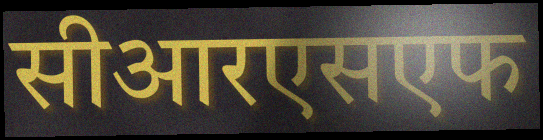
सीआरएसएफ